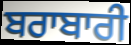
ਬਰਾਬਾਰੀ